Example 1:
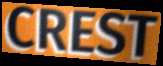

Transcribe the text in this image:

CREST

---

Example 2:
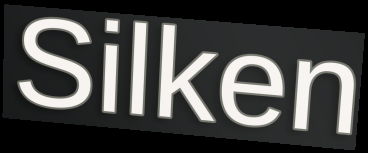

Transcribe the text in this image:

Silken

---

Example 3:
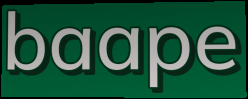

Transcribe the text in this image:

baape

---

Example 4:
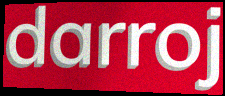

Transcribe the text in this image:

darroj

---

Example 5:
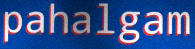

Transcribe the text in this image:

pahalgam